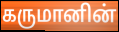
கருமானின்